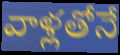
వాళ్లతోనే